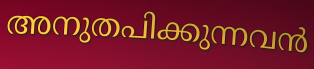
അനുതപിക്കുന്നവൻ